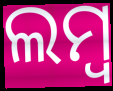
ଲମ୍ୱ